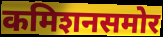
कमिशनसमोर